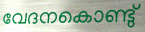
വേദനകൊണ്ടു്